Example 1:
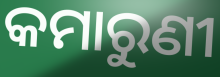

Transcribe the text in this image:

କମାରୁଣୀ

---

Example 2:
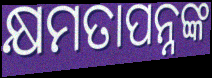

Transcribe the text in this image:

କ୍ଷମତାପନ୍ନଙ୍କ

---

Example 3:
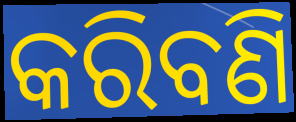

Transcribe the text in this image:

କରିବଣି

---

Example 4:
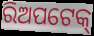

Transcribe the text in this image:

ରିଅପଟେକ୍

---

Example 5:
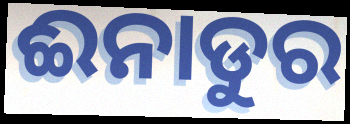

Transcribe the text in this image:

ଈନାଡୁର